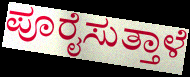
ಪೂರೈಸುತ್ತಾಳೆ